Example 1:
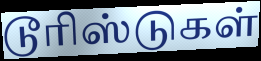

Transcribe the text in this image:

டூரிஸ்டுகள்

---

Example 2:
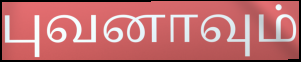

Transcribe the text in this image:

புவனாவும்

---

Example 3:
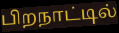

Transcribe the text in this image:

பிறநாட்டில்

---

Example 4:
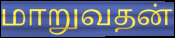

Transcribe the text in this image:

மாறுவதன்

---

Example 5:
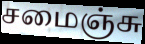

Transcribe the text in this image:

சமைஞ்சு